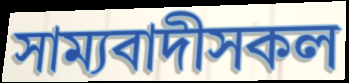
সাম্যবাদীসকল